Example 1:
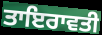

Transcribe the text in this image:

ਤਾਇਰਾਵਤੀ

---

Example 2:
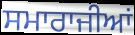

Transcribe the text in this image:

ਸਮਾਰਾਜੀਆਂ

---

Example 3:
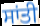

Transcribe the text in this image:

ਸਾਂਤੀ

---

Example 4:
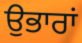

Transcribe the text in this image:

ਉਭਾਰਾਂ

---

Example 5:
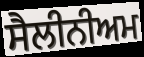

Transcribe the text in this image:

ਸੈਲੀਨੀਅਮ